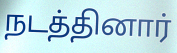
நடத்தினார்